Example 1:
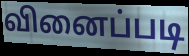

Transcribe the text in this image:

வினைப்படி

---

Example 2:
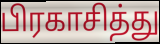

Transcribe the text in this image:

பிரகாசித்து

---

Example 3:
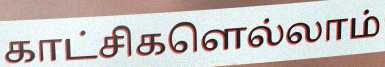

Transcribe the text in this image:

காட்சிகளெல்லாம்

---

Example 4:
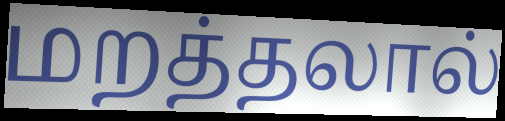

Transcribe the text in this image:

மறத்தலால்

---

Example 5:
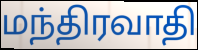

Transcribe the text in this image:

மந்திரவாதி